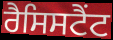
ਰੈਸਿਸਟੈਂਟ